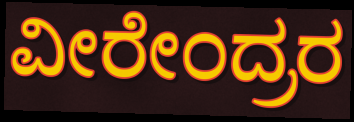
ವೀರೇಂದ್ರರ